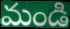
మండి